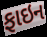
ફાઇન